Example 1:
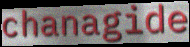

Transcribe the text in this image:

chanagide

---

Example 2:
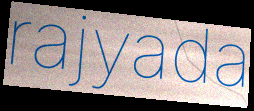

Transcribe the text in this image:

rajyada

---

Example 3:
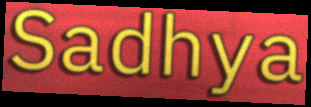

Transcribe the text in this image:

Sadhya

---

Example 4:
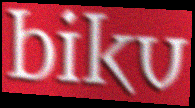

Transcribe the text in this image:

biku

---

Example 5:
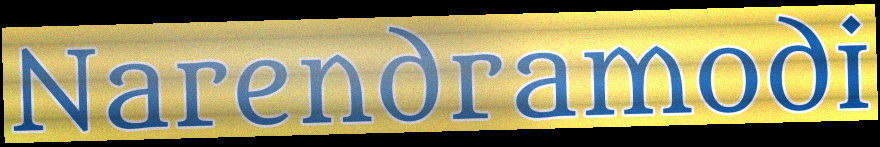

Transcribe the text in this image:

Narendramodi